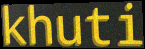
khuti